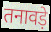
तनावड़े